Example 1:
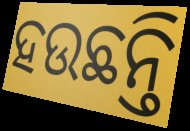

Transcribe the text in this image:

ହଉଛନ୍ତି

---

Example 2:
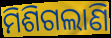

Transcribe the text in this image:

ମିଶିଗଲାଣି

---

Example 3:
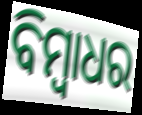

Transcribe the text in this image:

ବିମ୍ବାଧର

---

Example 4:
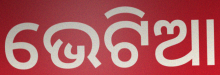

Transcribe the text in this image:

ଭେଟିଆ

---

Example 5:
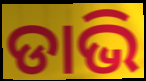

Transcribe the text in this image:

ଡାଭି